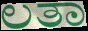
ಲತಾ